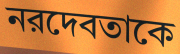
নরদেবতাকে